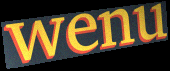
wenu